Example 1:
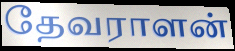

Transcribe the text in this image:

தேவராளன்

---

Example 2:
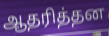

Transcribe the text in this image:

ஆதரித்தன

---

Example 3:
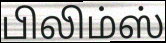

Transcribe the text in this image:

பிலிம்ஸ்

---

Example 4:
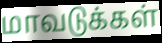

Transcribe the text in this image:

மாவடுக்கள்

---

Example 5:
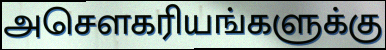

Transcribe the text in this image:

அசௌகரியங்களுக்கு